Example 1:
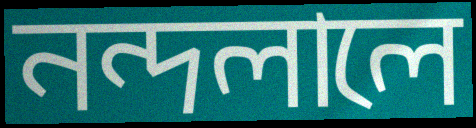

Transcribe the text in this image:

নন্দলালে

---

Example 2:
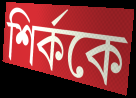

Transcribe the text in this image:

শির্ককে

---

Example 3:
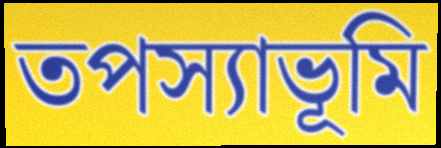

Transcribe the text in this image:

তপস্যাভূমি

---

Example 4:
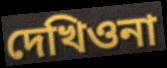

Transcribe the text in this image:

দেখিওনা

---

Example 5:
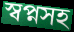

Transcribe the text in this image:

স্বপ্নসহ